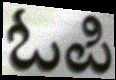
ಓಪಿ